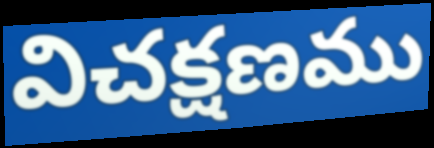
విచక్షణము